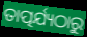
ତାତ୍ପର୍ଯ୍ୟଠାରୁ